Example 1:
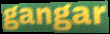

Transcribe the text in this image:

gangar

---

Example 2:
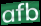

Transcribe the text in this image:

afb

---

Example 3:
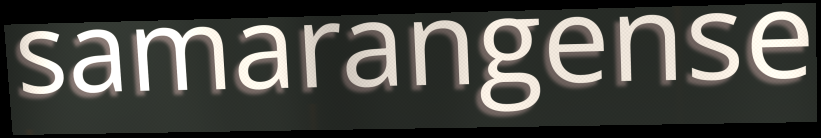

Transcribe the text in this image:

samarangense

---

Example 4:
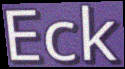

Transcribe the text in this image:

Eck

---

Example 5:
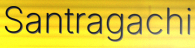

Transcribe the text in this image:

Santragachi